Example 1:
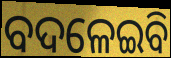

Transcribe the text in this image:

ବଦଳେଇବି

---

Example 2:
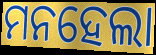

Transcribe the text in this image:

ମନହେଲା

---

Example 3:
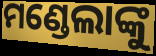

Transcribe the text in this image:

ମଣ୍ଡେଲାଙ୍କୁ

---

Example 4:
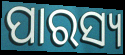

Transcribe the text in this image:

ପାରସ୍ୟ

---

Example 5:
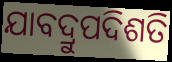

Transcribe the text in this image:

ଯାବଦ୍ରୁପଦିଶତି